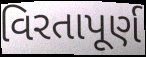
વિરતાપૂર્ણ